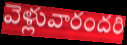
వెళ్లువారందరి